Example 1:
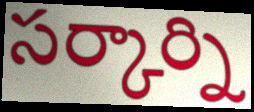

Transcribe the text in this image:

సర్కార్ని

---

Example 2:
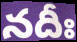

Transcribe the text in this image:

నదీః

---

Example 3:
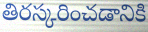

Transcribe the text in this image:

తిరస్కరించడానికి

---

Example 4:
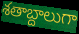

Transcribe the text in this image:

శతాబ్దాలుగా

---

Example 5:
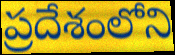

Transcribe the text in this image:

ప్రదేశంలోని